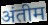
अंतीम